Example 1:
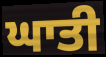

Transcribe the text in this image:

ਘਾਤੀ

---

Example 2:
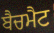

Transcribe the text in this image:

ਬੈਚਮੈਟ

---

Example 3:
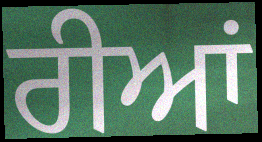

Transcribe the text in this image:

ਰੀਆਂ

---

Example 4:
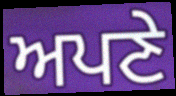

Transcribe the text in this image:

ਅਪਣੇ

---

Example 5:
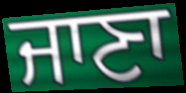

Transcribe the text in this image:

ਜਾਣਾ